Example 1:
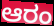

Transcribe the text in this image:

ಆರಂ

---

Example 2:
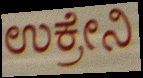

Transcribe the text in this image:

ಉಕ್ರೇನಿ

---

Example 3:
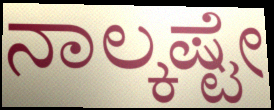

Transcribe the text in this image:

ನಾಲ್ಕಷ್ಟೇ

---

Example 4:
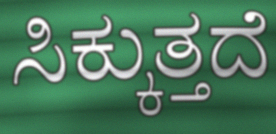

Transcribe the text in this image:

ಸಿಕ್ಕುತ್ತದೆ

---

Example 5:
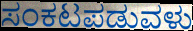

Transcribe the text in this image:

ಸಂಕಟಪಡುವಳು